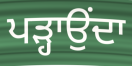
ਪੜ੍ਹਾਉਂਦਾ